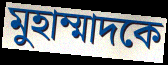
মুহাম্মাদকে